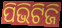
ପିଭିଟିଜି